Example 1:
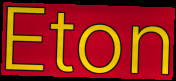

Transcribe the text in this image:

Eton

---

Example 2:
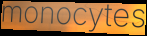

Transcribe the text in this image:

monocytes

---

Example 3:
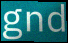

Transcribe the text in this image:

gnd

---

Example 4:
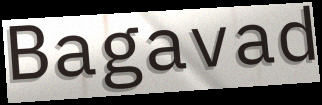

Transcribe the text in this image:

Bagavad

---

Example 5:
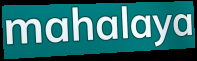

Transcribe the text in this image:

mahalaya